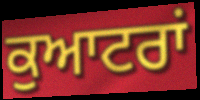
ਕੁਆਟਰਾਂ